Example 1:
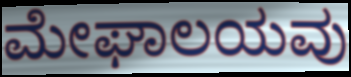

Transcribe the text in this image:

ಮೇಘಾಲಯವು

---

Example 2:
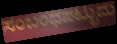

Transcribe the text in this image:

ಸಂಬಂಧಪಟ್ಟುದು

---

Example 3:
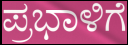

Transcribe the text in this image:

ಪ್ರಭಾಳಿಗೆ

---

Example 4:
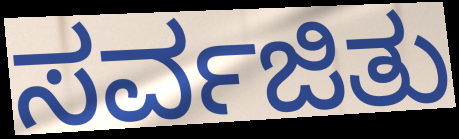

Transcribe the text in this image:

ಸರ್ವಜಿತು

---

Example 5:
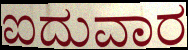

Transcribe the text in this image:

ಐದುವಾರ